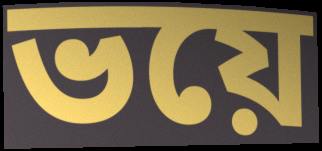
ভয়ে